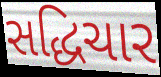
સદ્ધિચાર